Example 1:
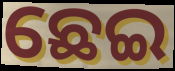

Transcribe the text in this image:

ଛେଇ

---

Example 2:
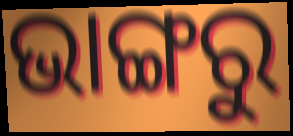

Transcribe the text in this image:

ଭାଙ୍ଗରୁ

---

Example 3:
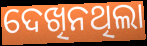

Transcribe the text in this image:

ଦେଖିନଥିଲା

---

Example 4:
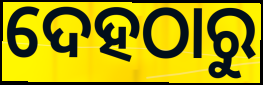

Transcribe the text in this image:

ଦେହଠାରୁ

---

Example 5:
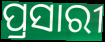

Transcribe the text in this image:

ପ୍ରସାରୀ